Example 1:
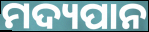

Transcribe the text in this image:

ମଦ୍ୟପାନ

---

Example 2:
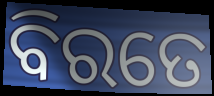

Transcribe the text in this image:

ବିରତେ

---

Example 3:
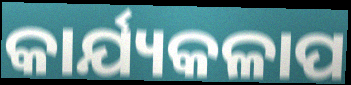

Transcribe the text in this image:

କାର୍ଯ୍ୟକଳାପ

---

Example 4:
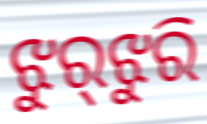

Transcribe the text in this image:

ଝୁର୍‌ଝୁରି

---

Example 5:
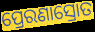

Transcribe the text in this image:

ପ୍ରେରଣାସ୍ରୋତ